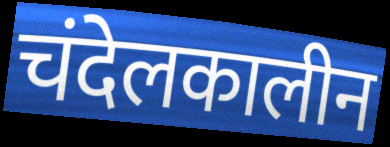
चंदेलकालीन